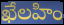
ఖేలహిం